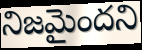
నిజమైందని